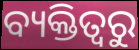
ବ୍ୟକ୍ତିତ୍ଵରୁ